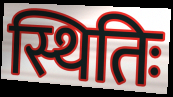
स्थितिः